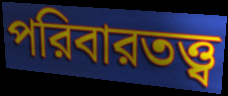
পরিবারতত্ত্ব